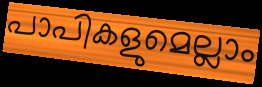
പാപികളുമെല്ലാം